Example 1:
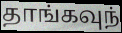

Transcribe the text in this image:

தாங்கவுந்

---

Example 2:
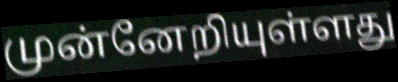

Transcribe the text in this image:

முன்னேறியுள்ளது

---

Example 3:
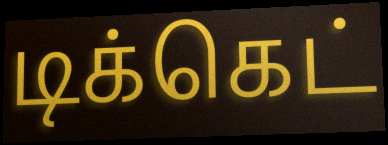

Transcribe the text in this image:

டிக்கெட்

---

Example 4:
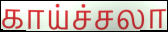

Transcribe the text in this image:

காய்ச்சலா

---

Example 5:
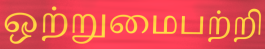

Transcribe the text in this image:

ஒற்றுமைபற்றி